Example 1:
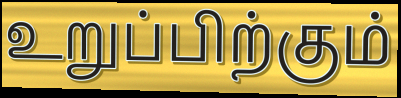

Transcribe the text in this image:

உறுப்பிற்கும்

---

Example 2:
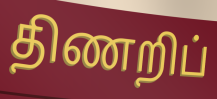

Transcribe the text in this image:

திணறிப்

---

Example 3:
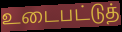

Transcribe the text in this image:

உடைபட்டுத்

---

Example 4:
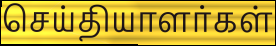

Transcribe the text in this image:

செய்தியாளர்கள்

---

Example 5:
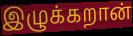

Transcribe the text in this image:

இழுக்கறான்